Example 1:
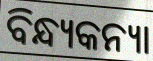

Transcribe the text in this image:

ବିନ୍ଧ୍ୟକନ୍ୟା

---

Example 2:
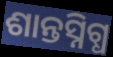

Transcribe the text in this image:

ଶାନ୍ତସ୍ନିଗ୍ଧ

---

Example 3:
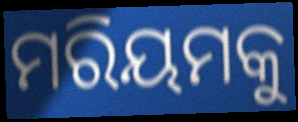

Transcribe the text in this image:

ମରିୟମକୁ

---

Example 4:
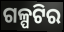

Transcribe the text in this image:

ଗଳ୍ପଟିର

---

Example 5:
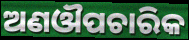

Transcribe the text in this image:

ଅଣଔପଚାରିକ